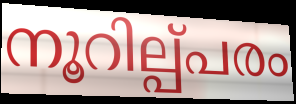
നൂറില്പ്പരം